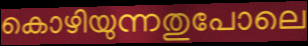
കൊഴിയുന്നതുപോലെ